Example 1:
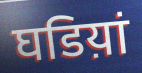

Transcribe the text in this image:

घडिय़ां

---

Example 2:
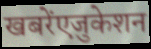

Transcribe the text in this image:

खबरेंएजुकेशन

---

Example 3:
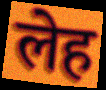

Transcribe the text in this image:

लेह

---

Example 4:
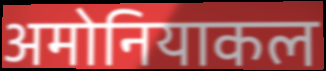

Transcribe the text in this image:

अमोनियाकल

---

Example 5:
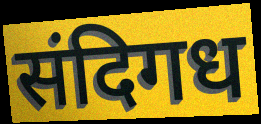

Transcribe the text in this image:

संदिगध